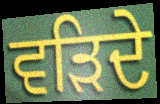
ਵੜਿਦੇ